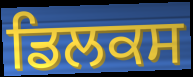
ਡਿਲਕਸ